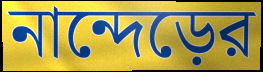
নান্দেড়ের